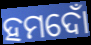
ହମଦୋଁ